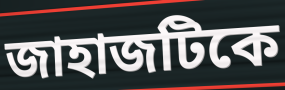
জাহাজটিকে